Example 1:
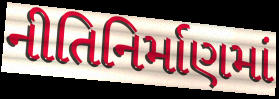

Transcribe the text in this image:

નીતિનિર્માણમાં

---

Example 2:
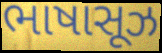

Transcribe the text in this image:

ભાષાસૂઝ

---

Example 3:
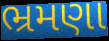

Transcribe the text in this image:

ભ્રમણા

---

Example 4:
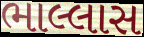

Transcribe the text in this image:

ભાલ્લાસ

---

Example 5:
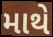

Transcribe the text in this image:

માથે